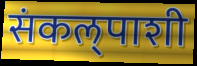
संकल्पाशी